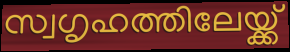
സ്വഗൃഹത്തിലേയ്ക്ക്